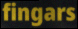
fingars